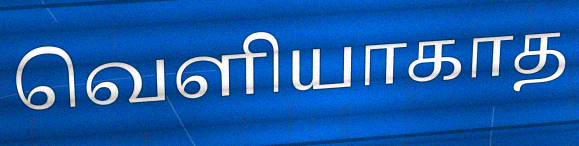
வெளியாகாத